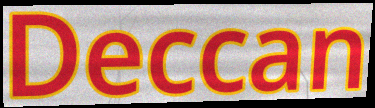
Deccan